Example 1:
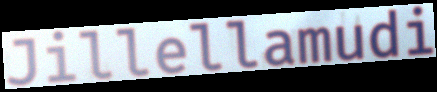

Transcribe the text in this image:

Jillellamudi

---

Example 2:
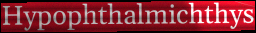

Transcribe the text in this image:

Hypophthalmichthys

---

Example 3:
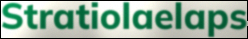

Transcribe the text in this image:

Stratiolaelaps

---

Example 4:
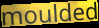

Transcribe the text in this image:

moulded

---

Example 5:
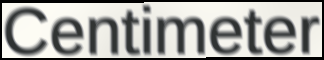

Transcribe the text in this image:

Centimeter